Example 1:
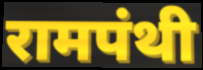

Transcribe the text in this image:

रामपंथी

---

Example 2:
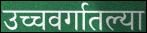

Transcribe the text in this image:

उच्चवर्गातल्या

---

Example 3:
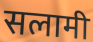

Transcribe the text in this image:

सलामी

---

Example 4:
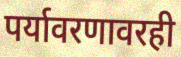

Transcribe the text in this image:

पर्यावरणावरही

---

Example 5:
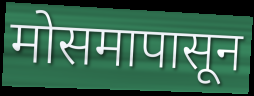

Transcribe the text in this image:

मोसमापासून